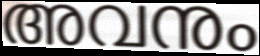
അവനും